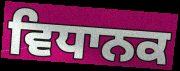
ਵਿਧਾਨਕ